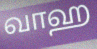
வாஹ